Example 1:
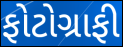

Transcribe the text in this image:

ફોટોગ્રાફી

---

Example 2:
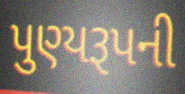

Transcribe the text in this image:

પુણ્યરૂપની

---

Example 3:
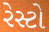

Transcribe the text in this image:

રેસ્ટો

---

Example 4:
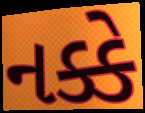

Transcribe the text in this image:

નક્કે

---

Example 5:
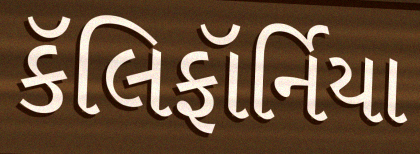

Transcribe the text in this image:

કૅલિફૉર્નિયા